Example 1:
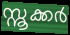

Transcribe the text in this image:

സ്നൂക്കർ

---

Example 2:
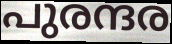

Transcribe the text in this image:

പുരന്ദര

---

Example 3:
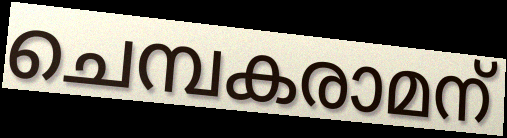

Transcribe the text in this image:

ചെമ്പകരാമന്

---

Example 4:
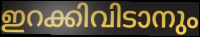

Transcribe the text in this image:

ഇറക്കിവിടാനും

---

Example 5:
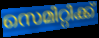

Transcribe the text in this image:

സെമിറ്റിക്ക്